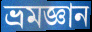
ভ্রমজ্ঞান